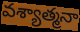
వశ్యాత్మనా